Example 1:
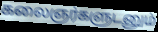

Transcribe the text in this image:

கலைஞர்களுடனும்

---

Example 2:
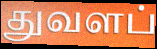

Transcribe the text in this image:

துவளப்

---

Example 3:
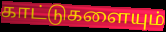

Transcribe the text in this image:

காட்டுகளையும்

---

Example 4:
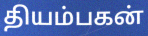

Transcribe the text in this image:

தியம்பகன்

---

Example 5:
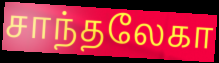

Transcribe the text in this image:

சாந்தலேகா